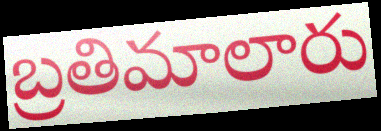
బ్రతిమాలారు